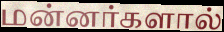
மன்னர்களால்